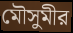
মৌসুমীর